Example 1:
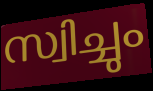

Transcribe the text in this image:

സ്വിച്ചും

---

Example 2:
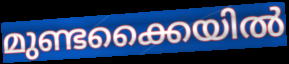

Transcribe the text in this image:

മുണ്ടക്കൈയിൽ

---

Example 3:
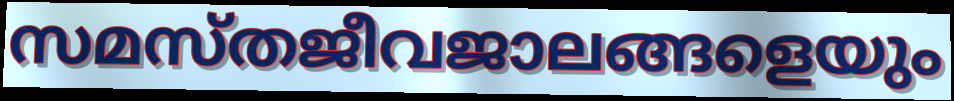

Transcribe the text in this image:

സമസ്തജീവജാലങ്ങളെയും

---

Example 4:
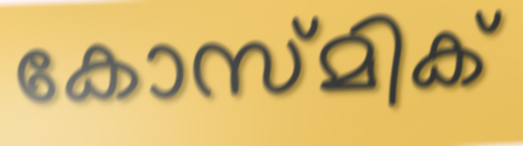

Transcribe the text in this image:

കോസ്മിക്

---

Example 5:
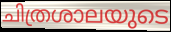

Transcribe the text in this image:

ചിത്രശാലയുടെ